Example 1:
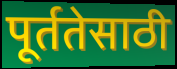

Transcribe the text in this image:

पूर्ततेसाठी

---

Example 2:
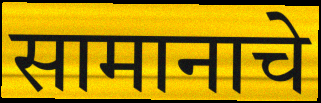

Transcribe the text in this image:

सामानाचे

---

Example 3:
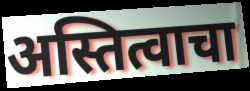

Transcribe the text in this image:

अस्तित्वाचा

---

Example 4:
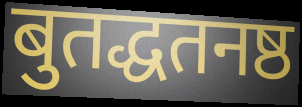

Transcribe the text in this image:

बुतद्धतनष्ठ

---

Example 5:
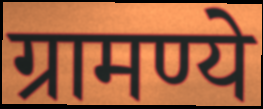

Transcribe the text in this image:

ग्रामण्ये